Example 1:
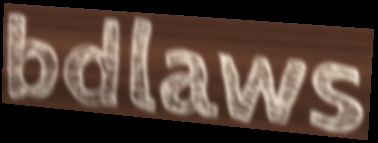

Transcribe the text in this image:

bdlaws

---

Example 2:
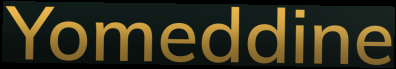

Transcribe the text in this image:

Yomeddine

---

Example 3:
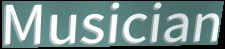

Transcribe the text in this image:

Musician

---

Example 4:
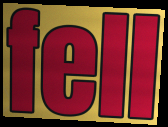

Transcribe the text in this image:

fell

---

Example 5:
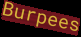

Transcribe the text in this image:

Burpees